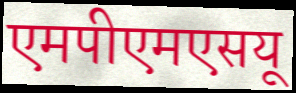
एमपीएमएसयू